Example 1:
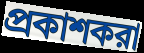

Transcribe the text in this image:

প্রকাশকরা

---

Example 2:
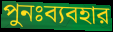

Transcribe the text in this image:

পুনঃব্যবহার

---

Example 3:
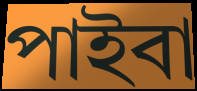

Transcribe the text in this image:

পাইবা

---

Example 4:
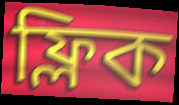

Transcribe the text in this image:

ফ্লিক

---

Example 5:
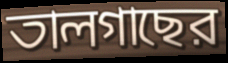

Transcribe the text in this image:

তালগাছের